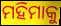
ମହିମାକୁ